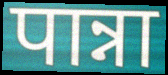
पान्ना